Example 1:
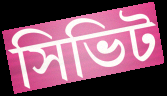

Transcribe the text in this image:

সিভিট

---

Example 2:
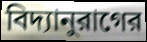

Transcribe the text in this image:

বিদ্যানুরাগের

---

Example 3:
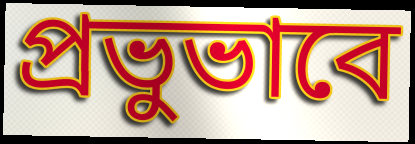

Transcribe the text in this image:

প্রভুভাবে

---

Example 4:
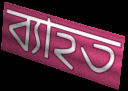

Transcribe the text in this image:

ব্যাহত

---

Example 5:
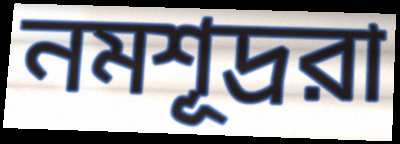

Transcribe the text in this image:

নমশূদ্ররা